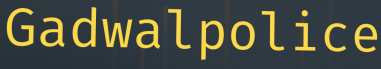
Gadwalpolice